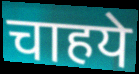
चाहये